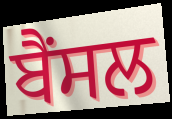
ਬੈਂਸਲ